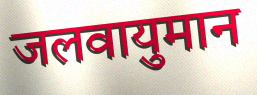
जलवायुमान